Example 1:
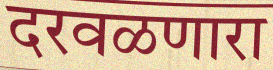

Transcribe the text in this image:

दरवळणारा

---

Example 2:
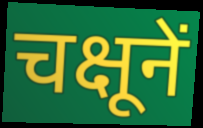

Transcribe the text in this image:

चक्षूनें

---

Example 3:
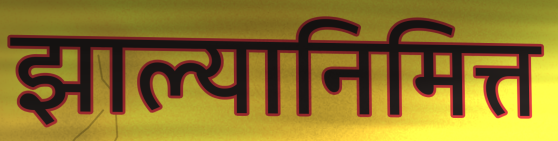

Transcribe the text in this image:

झाल्यानिमित्त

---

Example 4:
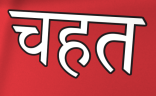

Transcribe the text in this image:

चहत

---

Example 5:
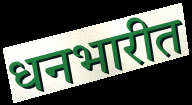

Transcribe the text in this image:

धनभारीत